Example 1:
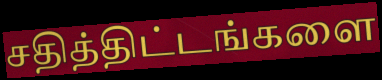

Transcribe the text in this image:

சதித்திட்டங்களை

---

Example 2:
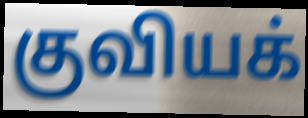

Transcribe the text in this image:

குவியக்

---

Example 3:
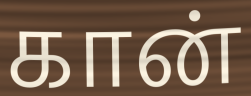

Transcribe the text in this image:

கான்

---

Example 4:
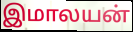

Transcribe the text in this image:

இமாலயன்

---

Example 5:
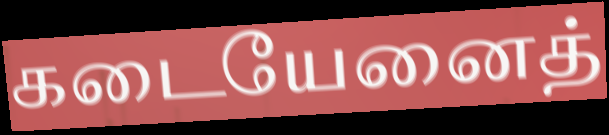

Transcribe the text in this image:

கடையேனைத்